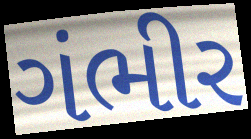
ગંભીર